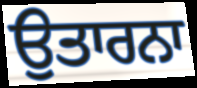
ਉਤਾਰਨਾ